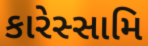
કારેસ્સામિ